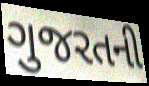
ગુજરતની